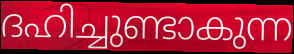
ദഹിച്ചുണ്ടാകുന്ന